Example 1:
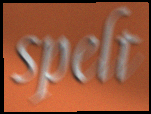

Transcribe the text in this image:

spelt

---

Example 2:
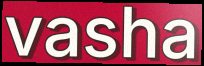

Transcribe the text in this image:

vasha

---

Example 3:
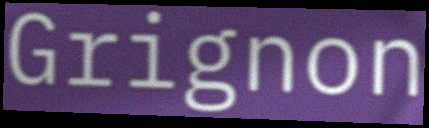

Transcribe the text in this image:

Grignon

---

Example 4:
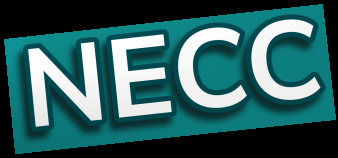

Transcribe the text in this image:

NECC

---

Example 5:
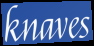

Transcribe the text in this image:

knaves